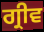
ਗ੍ਰੀਵ